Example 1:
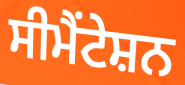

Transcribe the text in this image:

ਸੀਮੈਂਟੇਸ਼ਨ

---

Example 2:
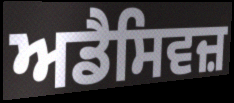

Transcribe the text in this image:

ਅਡੈਸਿਵਜ਼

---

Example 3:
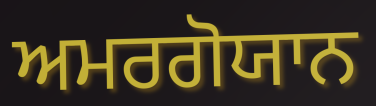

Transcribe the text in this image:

ਅਮਰਗੋਯਾਨ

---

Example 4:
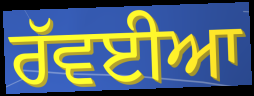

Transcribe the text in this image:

ਰੱਵਈਆ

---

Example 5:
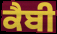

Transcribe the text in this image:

ਕੈਬੀ